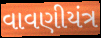
વાવણીયંત્ર